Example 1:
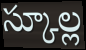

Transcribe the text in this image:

స్కూల్ల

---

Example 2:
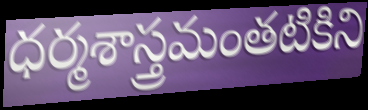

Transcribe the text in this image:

ధర్మశాస్త్రమంతటికిని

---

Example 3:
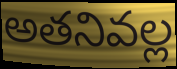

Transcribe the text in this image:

అతనివల్ల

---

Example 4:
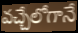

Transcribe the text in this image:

వచ్చేలోగానే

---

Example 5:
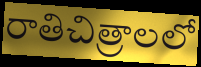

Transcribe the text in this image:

రాతిచిత్రాలలో